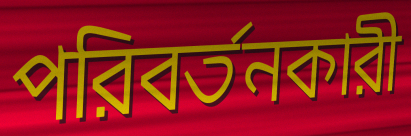
পরিবর্তনকারী